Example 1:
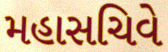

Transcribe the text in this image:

મહાસચિવે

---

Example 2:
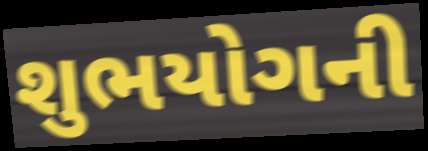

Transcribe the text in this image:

શુભયોગની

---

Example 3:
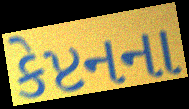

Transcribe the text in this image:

કેપ્ટનના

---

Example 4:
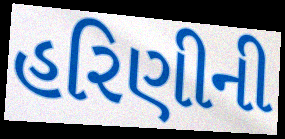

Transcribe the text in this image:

હરિણીની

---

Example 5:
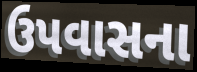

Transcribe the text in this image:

ઉપવાસના